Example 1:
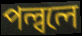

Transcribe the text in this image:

পল্বলে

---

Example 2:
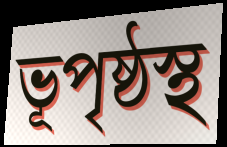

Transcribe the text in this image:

ভূপৃষ্ঠস্থ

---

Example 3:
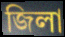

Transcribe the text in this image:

জিলা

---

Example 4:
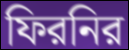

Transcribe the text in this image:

ফিরনির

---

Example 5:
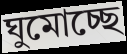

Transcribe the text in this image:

ঘুমোচ্ছে